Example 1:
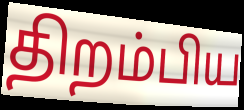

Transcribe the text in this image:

திறம்பிய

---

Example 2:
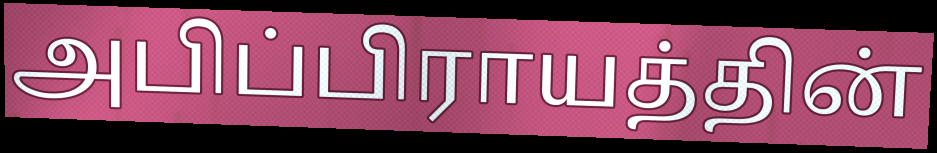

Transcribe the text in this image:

அபிப்பிராயத்தின்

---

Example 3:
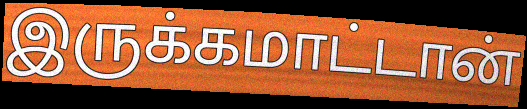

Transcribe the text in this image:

இருக்கமாட்டான்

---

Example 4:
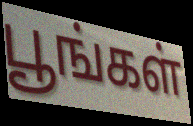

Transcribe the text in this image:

பூங்கள்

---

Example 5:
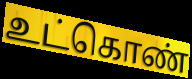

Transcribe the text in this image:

உட்கொண்